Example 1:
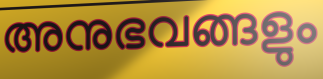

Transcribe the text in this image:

അനുഭവങ്ങളും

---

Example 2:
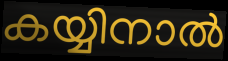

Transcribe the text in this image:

കയ്യിനാൽ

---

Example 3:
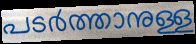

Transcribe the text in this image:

പടർത്താനുള്ള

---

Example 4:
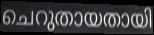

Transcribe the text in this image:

ചെറുതായതായി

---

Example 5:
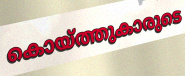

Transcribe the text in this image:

കൊയ്ത്തുകാരുടെ